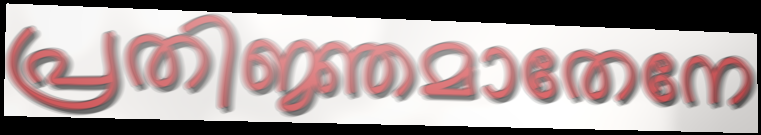
പ്രതിജ്ഞമാതേനേ